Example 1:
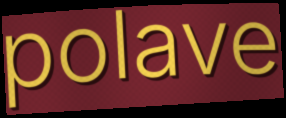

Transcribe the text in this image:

polave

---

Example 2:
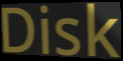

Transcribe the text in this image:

Disk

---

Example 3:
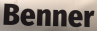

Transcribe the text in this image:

Benner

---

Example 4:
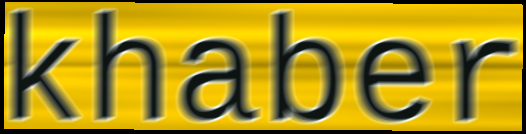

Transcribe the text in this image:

khaber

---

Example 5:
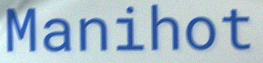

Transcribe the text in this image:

Manihot